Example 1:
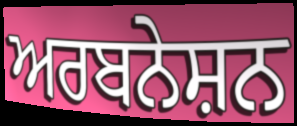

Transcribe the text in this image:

ਅਰਬਨੇਸ਼ਨ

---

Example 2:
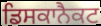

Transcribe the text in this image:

ਡਿਸਕਾਨੈਕਟ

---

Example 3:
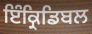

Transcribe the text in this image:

ਇੰਕ੍ਰਿਡਿਬਲ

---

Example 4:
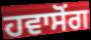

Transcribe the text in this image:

ਹਵਾਸੋਂਗ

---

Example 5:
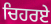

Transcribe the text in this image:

ਚਿਹਰਏ